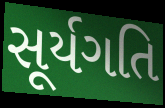
સૂર્યગતિ